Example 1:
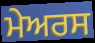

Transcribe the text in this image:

ਮੇਅਰਸ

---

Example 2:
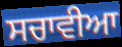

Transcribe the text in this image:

ਸਚਾਵੀਆ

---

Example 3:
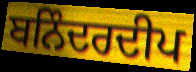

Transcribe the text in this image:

ਬਨਿੰਦਰਦੀਪ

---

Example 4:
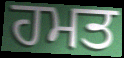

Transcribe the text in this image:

ਹਮਤ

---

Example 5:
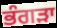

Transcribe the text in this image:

ਭੰਗੜਾ